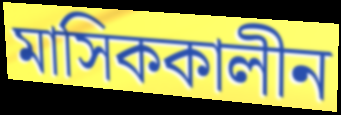
মাসিককালীন